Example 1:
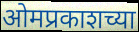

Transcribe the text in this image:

ओमप्रकाशच्या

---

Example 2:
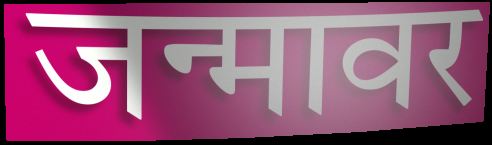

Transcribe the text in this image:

जन्मावर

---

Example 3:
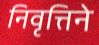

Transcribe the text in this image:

निवृत्तिने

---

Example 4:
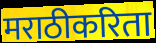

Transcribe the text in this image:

मराठीकरिता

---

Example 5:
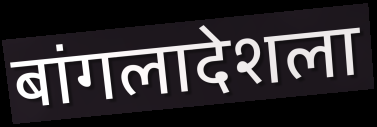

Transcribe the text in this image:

बांगलादेशला